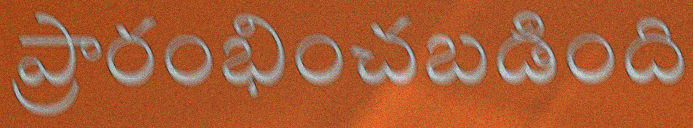
ప్రారంభించబడింది